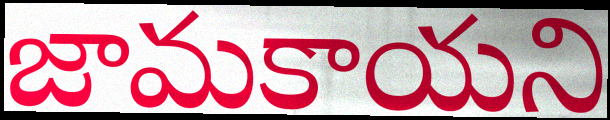
జామకాయని